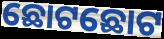
ଛୋଟଛୋଟ